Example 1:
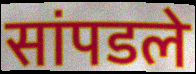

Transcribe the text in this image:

सांपडले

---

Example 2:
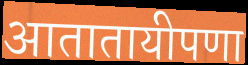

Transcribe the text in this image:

आतातायीपणा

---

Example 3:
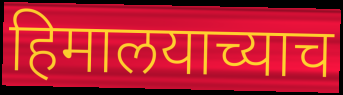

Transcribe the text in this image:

हिमालयाच्याच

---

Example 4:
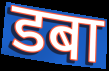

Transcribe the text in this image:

डबा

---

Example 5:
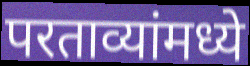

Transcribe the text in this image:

परताव्यांमध्ये